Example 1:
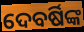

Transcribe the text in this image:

ଦେବର୍ଷିଙ୍କ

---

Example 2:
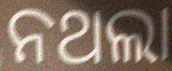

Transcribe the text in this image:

ନଥଲା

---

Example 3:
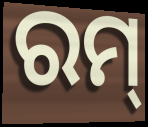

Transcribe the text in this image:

ରମ୍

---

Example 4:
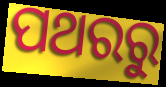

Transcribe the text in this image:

ପଥରରୁ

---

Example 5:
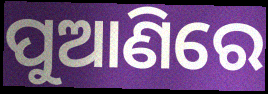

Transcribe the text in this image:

ପୁଆଣିରେ